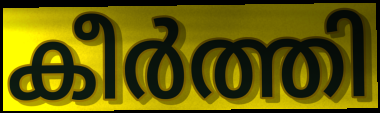
കീർത്തി